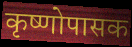
कृष्णोपासक